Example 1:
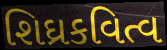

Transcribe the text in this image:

શિઘ્રકવિત્વ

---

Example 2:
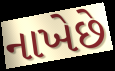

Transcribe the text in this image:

નાખેછે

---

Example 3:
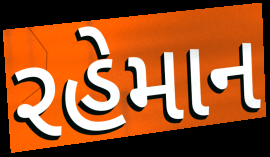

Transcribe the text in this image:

રહેમાન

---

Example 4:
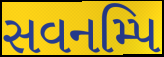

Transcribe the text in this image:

સવનમ્પિ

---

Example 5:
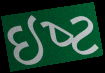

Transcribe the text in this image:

ઇષ્‍ટ